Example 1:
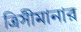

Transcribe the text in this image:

ত্রিসীমানার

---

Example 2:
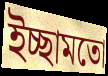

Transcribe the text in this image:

ইচ্ছামতো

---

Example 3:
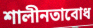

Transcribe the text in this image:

শালীনতাবোধ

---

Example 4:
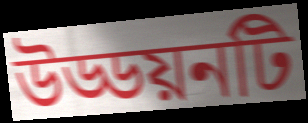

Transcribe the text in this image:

উড্ডয়নটি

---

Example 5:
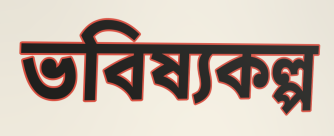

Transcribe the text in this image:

ভবিষ্যকল্প